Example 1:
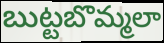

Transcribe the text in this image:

బుట్టబొమ్మలా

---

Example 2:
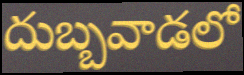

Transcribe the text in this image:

దుబ్బవాడలో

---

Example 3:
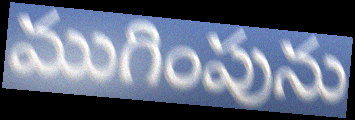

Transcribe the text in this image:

ముగింపును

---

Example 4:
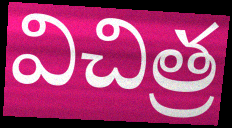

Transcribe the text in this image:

విచిత్ర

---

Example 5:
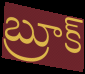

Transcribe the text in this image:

బ్రూక్